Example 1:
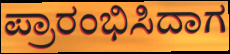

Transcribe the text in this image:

ಪ್ರಾರಂಭಿಸಿದಾಗ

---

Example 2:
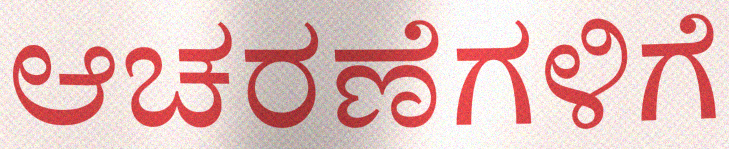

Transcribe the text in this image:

ಆಚರಣೆಗಳಿಗೆ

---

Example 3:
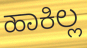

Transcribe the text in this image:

ಹಾಕಿಲ್ಲ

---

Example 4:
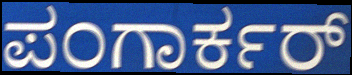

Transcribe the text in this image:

ಪಂಗಾರ್ಕರ್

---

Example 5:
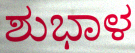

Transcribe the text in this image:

ಶುಭಾಳ